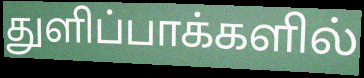
துளிப்பாக்களில்